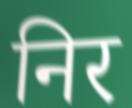
निर